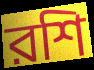
রশি